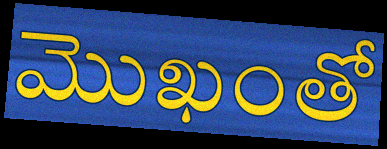
మొఖంతో